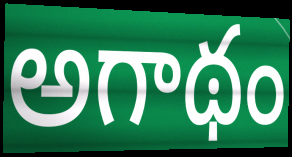
అగాథం